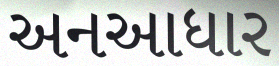
અનઆધાર